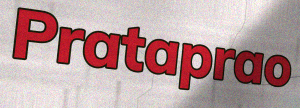
Prataprao